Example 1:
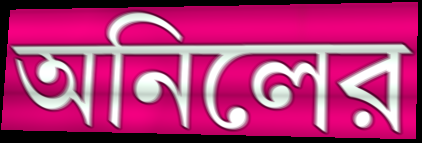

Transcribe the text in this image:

অনিলের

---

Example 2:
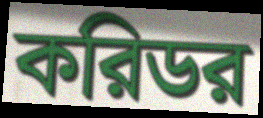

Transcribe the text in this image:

করিডর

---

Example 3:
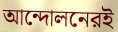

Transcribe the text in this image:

আন্দোলনেরই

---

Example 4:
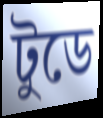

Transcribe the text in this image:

টুডে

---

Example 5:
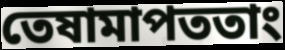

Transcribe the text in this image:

তেষামাপততাং